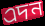
এদন